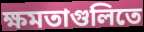
ক্ষমতাগুলিতে